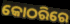
କୋଠରିରେ